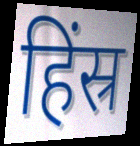
हिंस्र